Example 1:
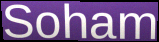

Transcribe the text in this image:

Soham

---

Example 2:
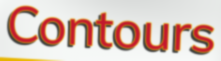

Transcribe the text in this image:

Contours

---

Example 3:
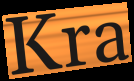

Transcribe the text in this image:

Kra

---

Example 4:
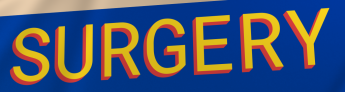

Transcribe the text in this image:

SURGERY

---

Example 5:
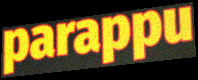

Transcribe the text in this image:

parappu